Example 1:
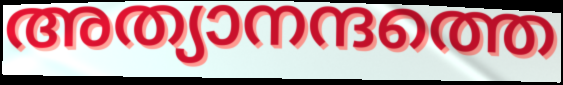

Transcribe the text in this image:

അത്യാനന്ദത്തെ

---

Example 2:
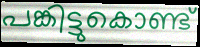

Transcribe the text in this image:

പങ്കിട്ടുകൊണ്ട്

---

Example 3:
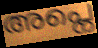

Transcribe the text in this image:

അപ്നെ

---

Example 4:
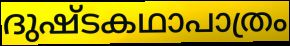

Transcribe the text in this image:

ദുഷ്ടകഥാപാത്രം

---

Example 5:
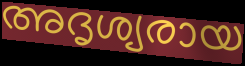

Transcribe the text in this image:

അദൃശ്യരായ